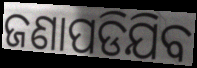
ଜଣାପଡିଯିବ